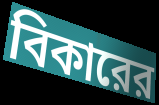
বিকারের